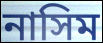
নাসিম